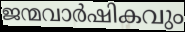
ജന്മവാർഷികവും